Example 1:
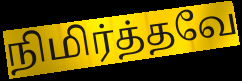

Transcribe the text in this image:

நிமிர்த்தவே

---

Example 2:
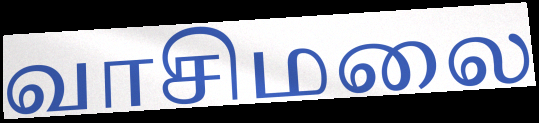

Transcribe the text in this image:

வாசிமலை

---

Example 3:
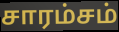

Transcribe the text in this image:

சாரம்சம்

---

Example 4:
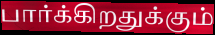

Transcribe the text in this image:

பார்க்கிறதுக்கும்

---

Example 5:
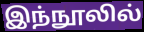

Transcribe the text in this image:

இந்நூலில்